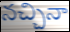
నచ్చినా